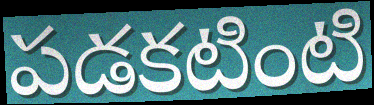
పడకటింటి